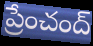
ప్రేంచంద్